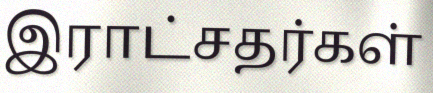
இராட்சதர்கள்